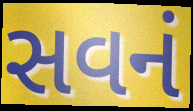
સવનં